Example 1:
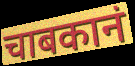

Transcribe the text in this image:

चाबकानं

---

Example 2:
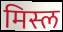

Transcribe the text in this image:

मिस्ल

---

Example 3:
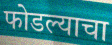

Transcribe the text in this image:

फोडल्याचा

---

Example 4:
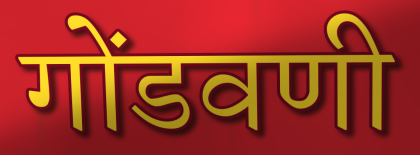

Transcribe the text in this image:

गोंडवणी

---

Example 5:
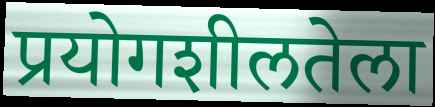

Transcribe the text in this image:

प्रयोगशीलतेला